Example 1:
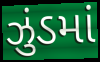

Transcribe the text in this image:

ઝુંડમાં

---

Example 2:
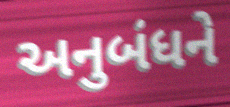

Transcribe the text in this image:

અનુબંધને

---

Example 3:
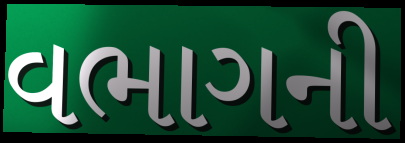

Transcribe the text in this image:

વભાગની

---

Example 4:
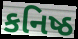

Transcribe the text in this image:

કનિષ્ઠ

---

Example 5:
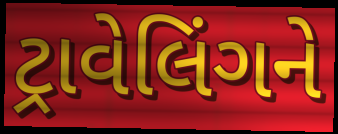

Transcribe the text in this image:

ટ્રાવેલિંગને